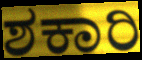
ಶಕಾರಿ